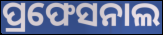
ପ୍ରଫେସନାଲ